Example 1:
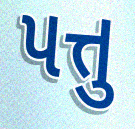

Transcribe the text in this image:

પત્તુ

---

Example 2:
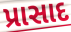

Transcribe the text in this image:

પ્રાસાદ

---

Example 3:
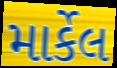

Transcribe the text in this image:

માર્કેલ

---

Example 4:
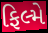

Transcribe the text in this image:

ફિલ્મે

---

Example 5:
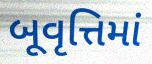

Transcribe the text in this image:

બૂવૃત્તિમાં